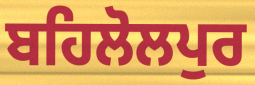
ਬਹਿਲੋਲਪੁਰ